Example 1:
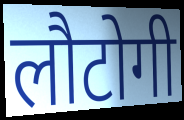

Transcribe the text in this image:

लौटोगी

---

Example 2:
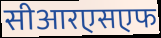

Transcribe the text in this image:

सीआरएसएफ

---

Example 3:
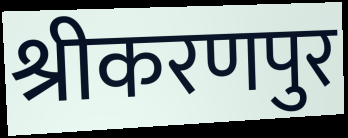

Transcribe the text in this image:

श्रीकरणपुर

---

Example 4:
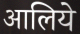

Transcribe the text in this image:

आलिये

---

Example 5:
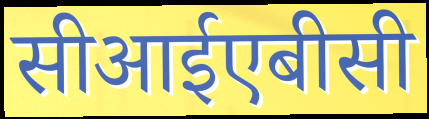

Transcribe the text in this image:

सीआईएबीसी